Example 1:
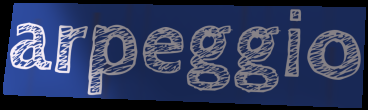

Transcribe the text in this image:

arpeggio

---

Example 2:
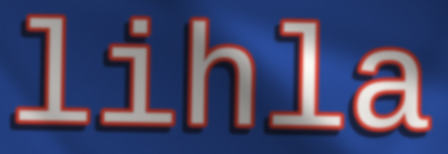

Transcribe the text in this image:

lihla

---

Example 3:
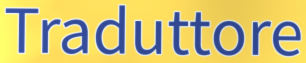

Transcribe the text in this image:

Traduttore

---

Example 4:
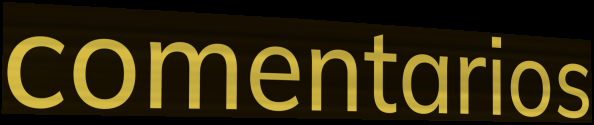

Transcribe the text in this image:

comentarios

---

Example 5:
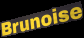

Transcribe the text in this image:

Brunoise